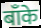
बाँके